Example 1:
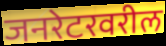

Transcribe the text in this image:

जनरेटरवरील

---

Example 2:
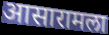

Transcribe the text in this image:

आसारामला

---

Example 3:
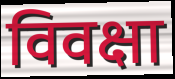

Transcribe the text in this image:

विवक्षा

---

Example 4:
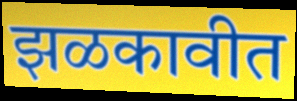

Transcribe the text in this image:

झळकावीत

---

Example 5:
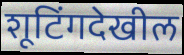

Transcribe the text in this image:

शूटिंगदेखील